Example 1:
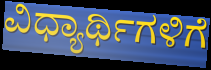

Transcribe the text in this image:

ವಿಧ್ಯಾರ್ಥಿಗಳಿಗೆ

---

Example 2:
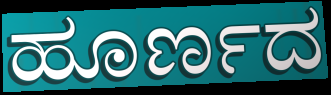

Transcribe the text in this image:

ಹೂರ್ಣದ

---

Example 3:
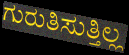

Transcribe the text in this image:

ಗುರುತಿಸುತ್ತಿಲ್ಲ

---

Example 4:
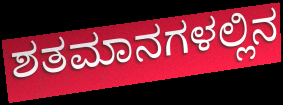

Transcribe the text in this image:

ಶತಮಾನಗಳಲ್ಲಿನ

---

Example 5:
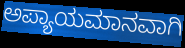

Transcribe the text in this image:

ಅಪ್ಯಾಯಮಾನವಾಗಿ